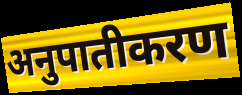
अनुपातीकरण